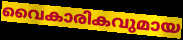
വൈകാരികവുമായ